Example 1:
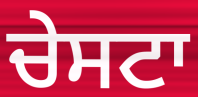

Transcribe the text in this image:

ਚੇਸਟਾ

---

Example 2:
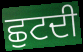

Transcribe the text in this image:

ਛੁਟਦੀ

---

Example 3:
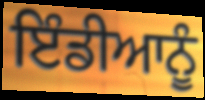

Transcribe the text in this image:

ਇੰਡੀਆਨੂੰ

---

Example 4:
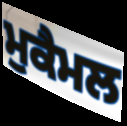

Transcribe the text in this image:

ਮੁਕੈਮਲ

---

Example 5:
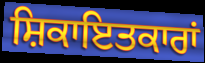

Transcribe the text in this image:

ਸ਼ਿਕਾਇਤਕਾਰਾਂ